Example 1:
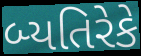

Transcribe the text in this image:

બ્યતિરેકે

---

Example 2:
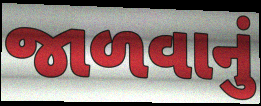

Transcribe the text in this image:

જાળવાનું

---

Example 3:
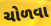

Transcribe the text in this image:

ચોળવા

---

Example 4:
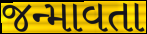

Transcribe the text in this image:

જન્માવતા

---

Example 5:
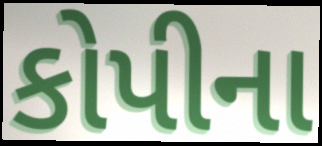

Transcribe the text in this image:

કોપીના